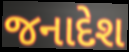
જનાદેશ